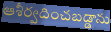
ఆశీర్వదించబడ్డాను